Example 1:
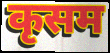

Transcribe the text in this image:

कृसम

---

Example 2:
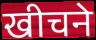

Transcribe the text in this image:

खीचने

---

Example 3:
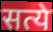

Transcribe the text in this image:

सत्ये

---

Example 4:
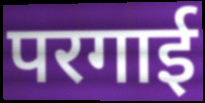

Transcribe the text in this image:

परगाई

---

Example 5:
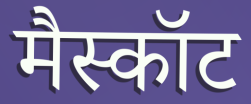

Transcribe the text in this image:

मैस्कॉट